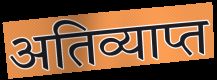
अतिव्याप्त